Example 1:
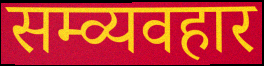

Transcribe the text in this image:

सम्व्यवहार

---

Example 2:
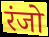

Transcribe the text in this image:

रंजो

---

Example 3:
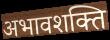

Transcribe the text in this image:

अभावशक्ति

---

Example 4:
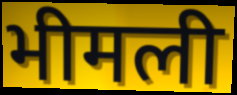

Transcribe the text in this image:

भीमली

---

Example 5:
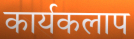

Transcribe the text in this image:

कार्यकलाप